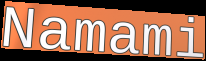
Namami